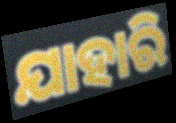
ଯାହାରି